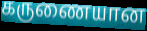
கருணையான